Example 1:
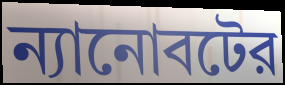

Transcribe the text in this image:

ন্যানোবটের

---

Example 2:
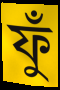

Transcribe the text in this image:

ফুঁ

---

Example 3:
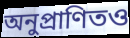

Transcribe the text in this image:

অনুপ্রাণিতও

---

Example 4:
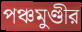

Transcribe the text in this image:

পঞ্চমুণ্ডীর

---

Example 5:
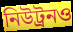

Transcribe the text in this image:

নিউট্রনও